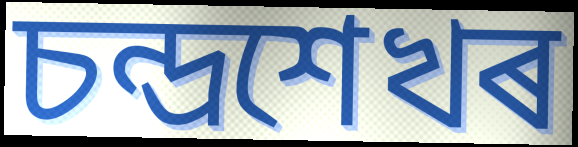
চন্দ্ৰশেখৰ